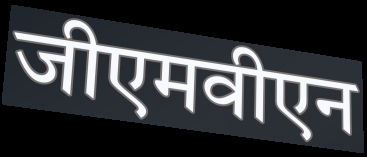
जीएमवीएन